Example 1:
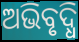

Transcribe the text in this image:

ଅଭିବୃଦ୍ଧି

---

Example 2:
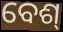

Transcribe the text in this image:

ବେଶ୍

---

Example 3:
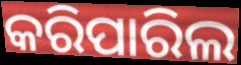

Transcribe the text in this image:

କରିପାରିଲ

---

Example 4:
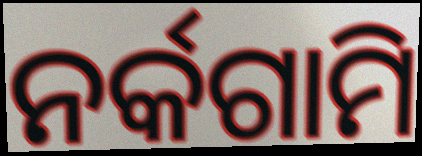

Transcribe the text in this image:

ନର୍କଗାମି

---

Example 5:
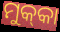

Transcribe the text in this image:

ମୁକ୍‌କା